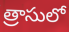
త్రాసులో